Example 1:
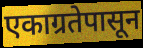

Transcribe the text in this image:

एकाग्रतेपासून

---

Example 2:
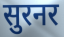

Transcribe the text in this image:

सुरनर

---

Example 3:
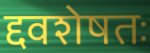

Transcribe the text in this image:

द्दवशेषतः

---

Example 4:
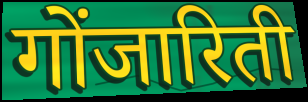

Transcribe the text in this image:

गोंजारिती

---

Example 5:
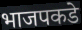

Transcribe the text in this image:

भाजपकडे